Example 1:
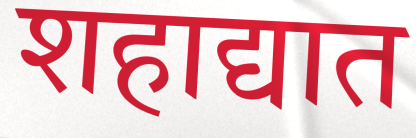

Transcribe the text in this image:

शहाद्यात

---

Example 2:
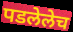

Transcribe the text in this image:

पडलेलेच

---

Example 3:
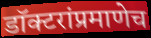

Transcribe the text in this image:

डॉक्टरांप्रमाणेच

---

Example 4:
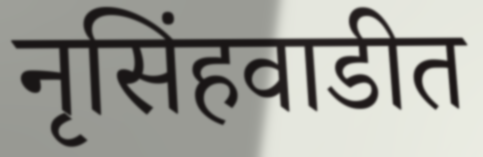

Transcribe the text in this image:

नृसिंहवाडीत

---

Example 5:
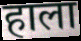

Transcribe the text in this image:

हाला